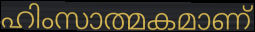
ഹിംസാത്മകമാണ്